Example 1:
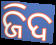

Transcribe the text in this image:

ଜିଦ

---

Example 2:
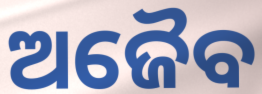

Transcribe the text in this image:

ଅଜୈବ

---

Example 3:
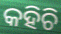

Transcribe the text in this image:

କହିଚି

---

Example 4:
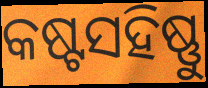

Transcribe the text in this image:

କଷ୍ଟସହିଷ୍ଣୁ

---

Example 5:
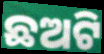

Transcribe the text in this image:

ଛଅଟି